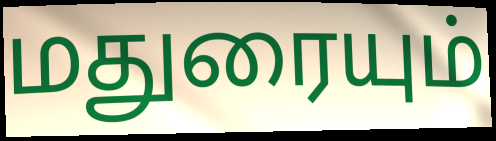
மதுரையும்